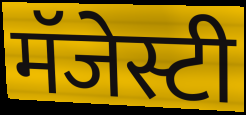
मॅजेस्टी